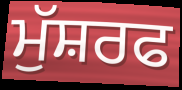
ਮੁੱਸ਼ਰਫ